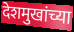
देशमुखांच्या